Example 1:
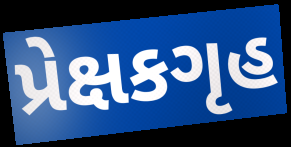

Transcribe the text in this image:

પ્રેક્ષકગૃહ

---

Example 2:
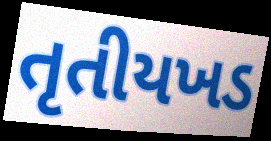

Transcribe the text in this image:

તૃતીયખડ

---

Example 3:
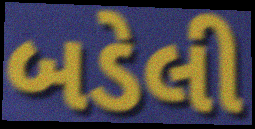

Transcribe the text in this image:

બડેલી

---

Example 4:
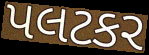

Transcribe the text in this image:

પલટકર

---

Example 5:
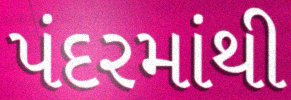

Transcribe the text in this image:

પંદરમાંથી